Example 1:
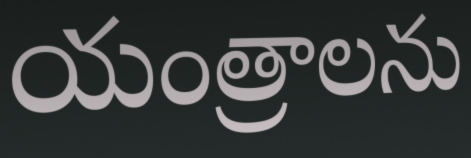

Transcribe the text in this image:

యంత్రాలను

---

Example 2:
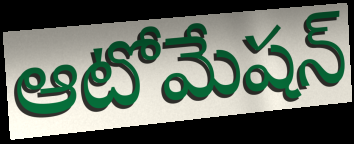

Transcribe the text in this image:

ఆటోమేషన్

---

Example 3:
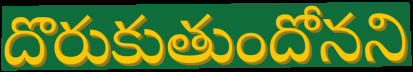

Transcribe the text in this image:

దొరుకుతుందోనని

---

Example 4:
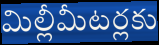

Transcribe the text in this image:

మిల్లీమీటర్లకు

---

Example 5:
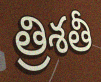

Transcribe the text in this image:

త్రిశతీ